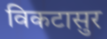
विकटासुर